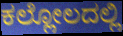
ಕಲ್ಲೋಲದಲ್ಲಿ